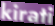
kirati